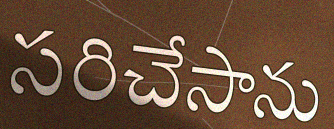
సరిచేసాను